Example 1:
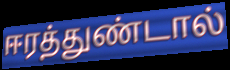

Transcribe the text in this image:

ஈரத்துண்டால்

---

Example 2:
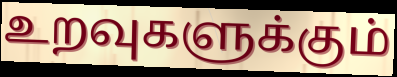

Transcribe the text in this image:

உறவுகளுக்கும்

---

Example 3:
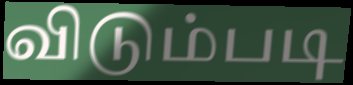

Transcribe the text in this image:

விடும்படி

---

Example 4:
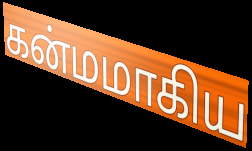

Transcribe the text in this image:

கன்மமாகிய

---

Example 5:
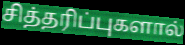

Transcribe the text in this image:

சித்தரிப்புகளால்